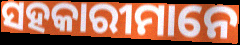
ସହକାରୀମାନେ